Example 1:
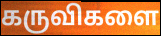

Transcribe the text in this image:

கருவிகளை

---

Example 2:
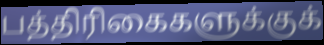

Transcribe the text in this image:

பத்திரிகைகளுக்குக்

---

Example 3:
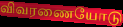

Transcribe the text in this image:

விவரணையோடு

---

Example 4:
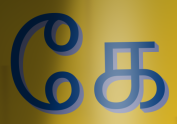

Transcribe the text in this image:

கே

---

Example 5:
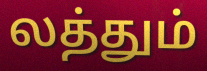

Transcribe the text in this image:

லத்தும்